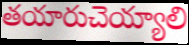
తయారుచెయ్యాలి